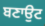
ਬਣਾਉਟ